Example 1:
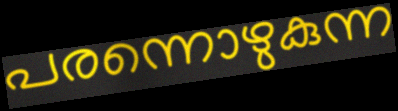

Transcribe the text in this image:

പരന്നൊഴുകുന്ന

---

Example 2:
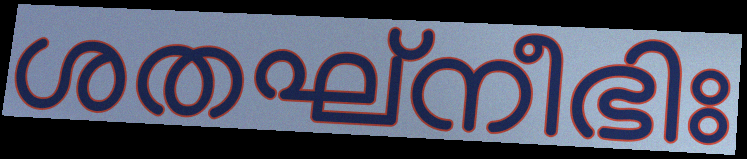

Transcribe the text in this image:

ശതഘ്നീഭിഃ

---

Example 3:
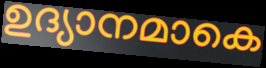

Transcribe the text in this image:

ഉദ്യാനമാകെ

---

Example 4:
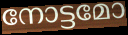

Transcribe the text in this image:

നോട്ടമോ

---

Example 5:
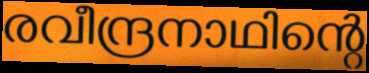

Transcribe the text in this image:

രവീന്ദ്രനാഥിന്റെ